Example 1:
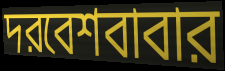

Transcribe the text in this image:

দরবেশবাবার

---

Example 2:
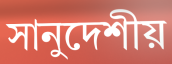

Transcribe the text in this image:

সানুদেশীয়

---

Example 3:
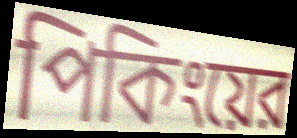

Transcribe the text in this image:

পিকিংয়ের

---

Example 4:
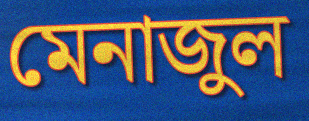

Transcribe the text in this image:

মেনাজুল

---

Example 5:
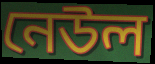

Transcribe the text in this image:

নেউল